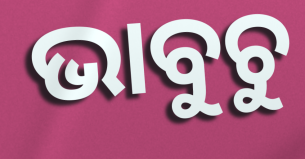
ଭାବୁଚୁ